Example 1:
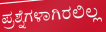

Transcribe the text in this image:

ಪ್ರಶ್ನೆಗಳಾಗಿರಲಿಲ್ಲ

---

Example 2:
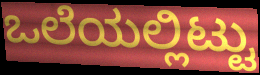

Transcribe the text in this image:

ಒಲೆಯಲ್ಲಿಟ್ಟು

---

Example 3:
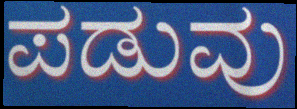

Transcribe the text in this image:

ಪಡುವು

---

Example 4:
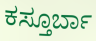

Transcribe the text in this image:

ಕಸ್ತೂರ್ಬಾ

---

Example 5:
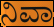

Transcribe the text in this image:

ನಿವಾ